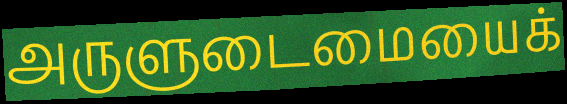
அருளுடைமையைக்